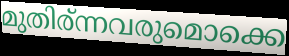
മുതിര്ന്നവരുമൊക്കെ